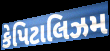
કેપિટાલિઝમ